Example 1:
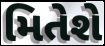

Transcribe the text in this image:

મિતેશે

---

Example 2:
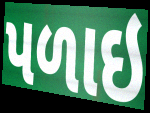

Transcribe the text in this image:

પળાઇ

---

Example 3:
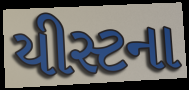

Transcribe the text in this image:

યીસ્ટના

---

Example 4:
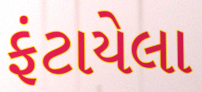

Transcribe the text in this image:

ફંટાયેલા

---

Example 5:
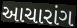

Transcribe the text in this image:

આચારાંગ